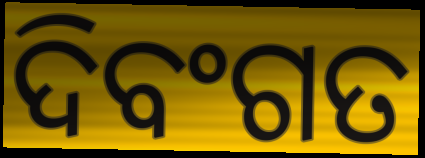
ଦିବଂଗତ